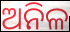
ଅନିଳ